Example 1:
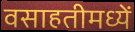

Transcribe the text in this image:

वसाहतीमध्यें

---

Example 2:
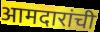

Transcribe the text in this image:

आमदारांची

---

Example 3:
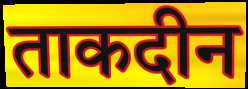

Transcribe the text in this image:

ताकदीन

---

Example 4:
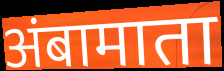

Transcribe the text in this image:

अंबामाता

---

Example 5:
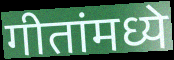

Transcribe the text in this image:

गीतांमध्ये